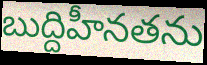
బుద్దిహీనతను